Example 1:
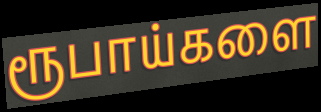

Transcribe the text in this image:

ரூபாய்களை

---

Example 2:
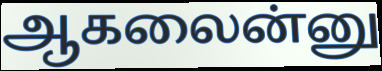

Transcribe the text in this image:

ஆகலைன்னு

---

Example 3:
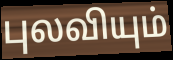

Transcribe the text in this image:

புலவியும்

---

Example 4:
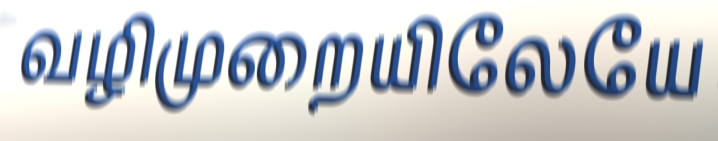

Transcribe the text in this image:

வழிமுறையிலேயே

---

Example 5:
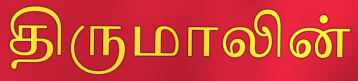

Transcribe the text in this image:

திருமாலின்